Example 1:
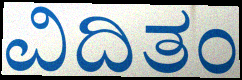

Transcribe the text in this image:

ವಿದಿತಂ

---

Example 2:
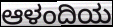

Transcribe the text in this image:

ಆಳಂದಿಯ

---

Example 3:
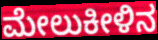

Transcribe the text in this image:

ಮೇಲುಕೀಳಿನ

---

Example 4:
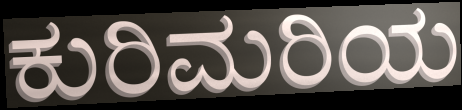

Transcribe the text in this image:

ಕುರಿಮರಿಯ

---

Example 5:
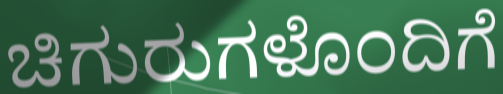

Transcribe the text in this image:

ಚಿಗುರುಗಳೊಂದಿಗೆ